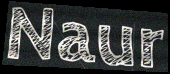
Naur